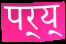
पर्य्